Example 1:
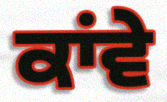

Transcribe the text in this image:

ਕਾਂਵੇ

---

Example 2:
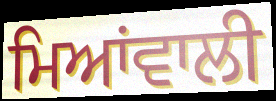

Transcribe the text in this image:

ਮਿਆਂਵਾਲੀ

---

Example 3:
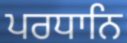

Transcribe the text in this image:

ਪਰਧਾਨਿ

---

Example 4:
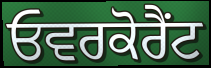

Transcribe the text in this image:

ਓਵਰਕੋਰੈਂਟ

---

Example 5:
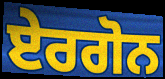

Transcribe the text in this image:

ਏਰਗੋਨ